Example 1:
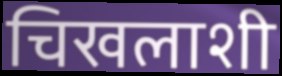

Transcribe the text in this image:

चिखलाशी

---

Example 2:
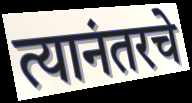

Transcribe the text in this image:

त्यानंतरचे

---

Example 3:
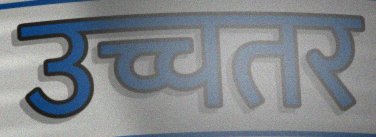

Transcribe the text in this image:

उच्चतर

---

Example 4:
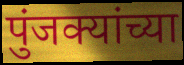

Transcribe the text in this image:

पुंजक्यांच्या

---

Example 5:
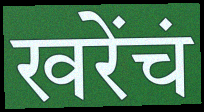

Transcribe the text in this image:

खरेंचं